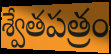
శ్వేతపత్రం